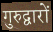
गुरुद्वारों